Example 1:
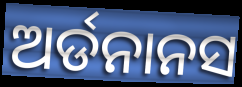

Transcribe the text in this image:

ଅର୍ଡନାନସ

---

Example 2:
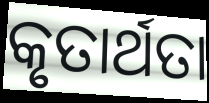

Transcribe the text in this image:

କୃତାର୍ଥତା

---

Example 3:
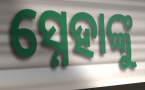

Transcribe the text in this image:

ସ୍ନେହାଙ୍କୁ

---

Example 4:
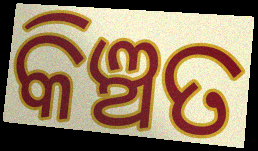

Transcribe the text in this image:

କିଞ୍ଚତ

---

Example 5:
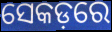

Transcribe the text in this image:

ସେକଡ଼ରେ